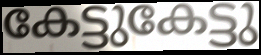
കേട്ടുകേട്ടു